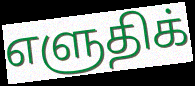
எளுதிக்